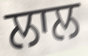
ਲਾਲ